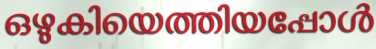
ഒഴുകിയെത്തിയപ്പോൾ